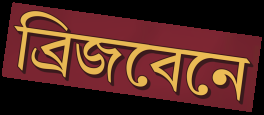
ব্রিজবেনে